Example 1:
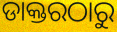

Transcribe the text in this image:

ଡାକ୍ତରଠାରୁ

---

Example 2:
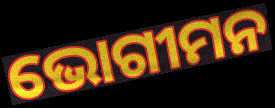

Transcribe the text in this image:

ଭୋଗୀମନ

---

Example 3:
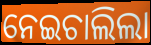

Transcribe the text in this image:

ନେଇଚାଲିଲା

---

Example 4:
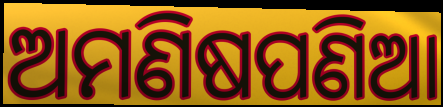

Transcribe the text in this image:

ଅମଣିଷପଣିଆ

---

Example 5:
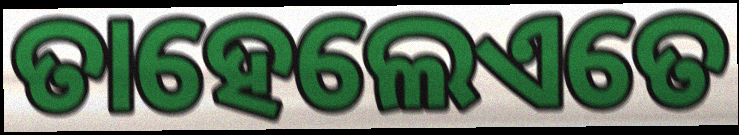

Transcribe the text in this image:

ତାହେଲେଏତେ